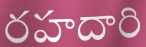
రహదారి